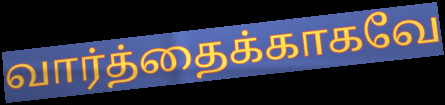
வார்த்தைக்காகவே